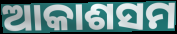
ଆକାଶସମ